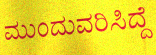
ಮುಂದುವರಿಸಿದ್ದೆ